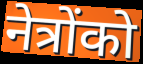
नेत्रोंको